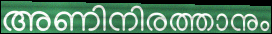
അണിനിരത്താനും